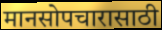
मानसोपचारासाठी